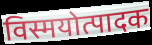
विस्मयोत्पादक